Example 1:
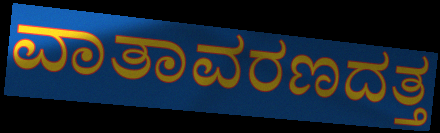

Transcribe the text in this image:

ವಾತಾವರಣದತ್ತ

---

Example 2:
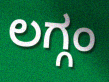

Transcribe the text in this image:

ಲಗ್ಗಂ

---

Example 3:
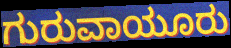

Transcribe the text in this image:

ಗುರುವಾಯೂರು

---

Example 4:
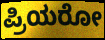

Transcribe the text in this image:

ಪ್ರಿಯರೋ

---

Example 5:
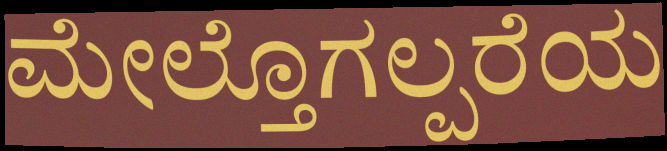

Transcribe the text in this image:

ಮೇಲ್ತೊಗಲ್ಪರೆಯ